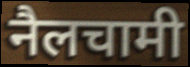
नैलचामी